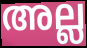
അല്ല